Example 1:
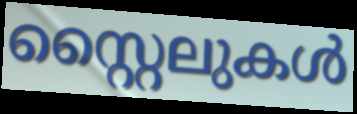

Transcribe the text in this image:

സ്റ്റൈലുകൾ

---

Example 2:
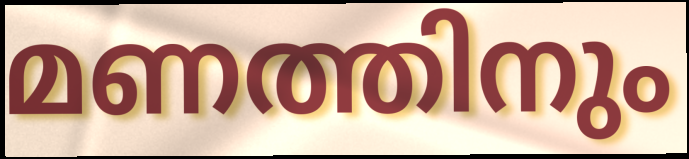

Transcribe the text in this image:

മണത്തിനും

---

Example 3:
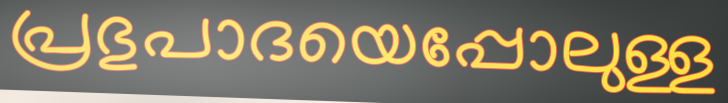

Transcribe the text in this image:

പ്രഭുപാദയെപ്പോലുള്ള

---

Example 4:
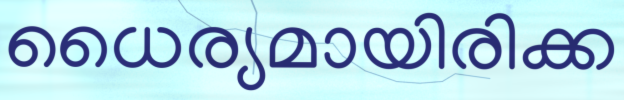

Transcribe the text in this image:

ധൈര്യമായിരിക്ക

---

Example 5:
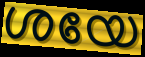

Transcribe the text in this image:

ശയേ